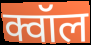
क्वॉल